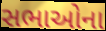
સભાઓના